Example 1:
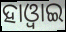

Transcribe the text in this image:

ହାଓ୍ୱାଇ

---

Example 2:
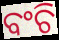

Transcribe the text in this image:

ବଂଚି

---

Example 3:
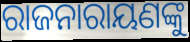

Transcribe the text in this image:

ରାଜନାରାୟଣଙ୍କୁ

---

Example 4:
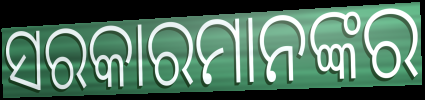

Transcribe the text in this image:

ସରକାରମାନଙ୍କର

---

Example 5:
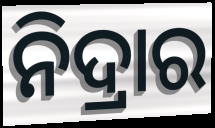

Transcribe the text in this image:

ନିଦ୍ରାର